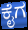
ಕೈಗ